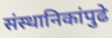
संस्थानिकांपुढे